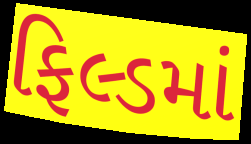
ફિલ્ડમાં